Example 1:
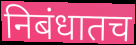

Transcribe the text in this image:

निबंधातच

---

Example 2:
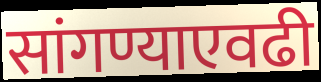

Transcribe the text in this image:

सांगण्याएवढी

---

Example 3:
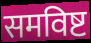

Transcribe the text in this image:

समविष्ट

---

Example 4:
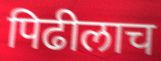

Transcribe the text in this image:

पिढीलाच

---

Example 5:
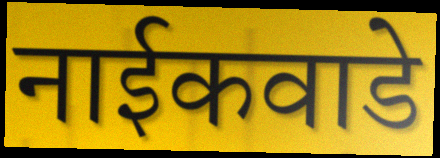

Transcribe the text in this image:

नाईकवाडे